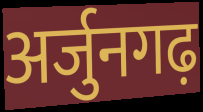
अर्जुनगढ़